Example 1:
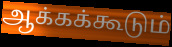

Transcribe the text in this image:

ஆக்கக்கூடும்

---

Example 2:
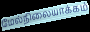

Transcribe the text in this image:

மேல்நிலையாக்கம்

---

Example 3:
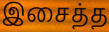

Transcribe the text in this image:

இசைத்த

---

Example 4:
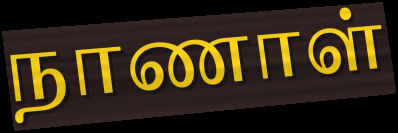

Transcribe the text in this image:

நாணாள்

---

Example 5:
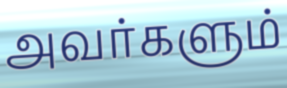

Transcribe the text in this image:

அவர்களும்